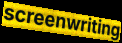
screenwriting